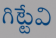
గిట్టేవి